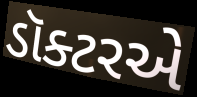
ડૉક્ટરએ